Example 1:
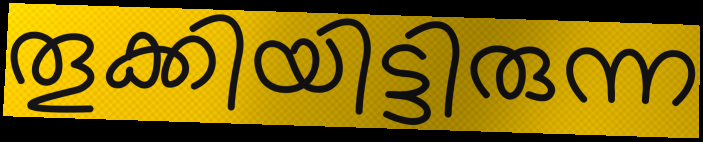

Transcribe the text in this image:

തൂക്കിയിട്ടിരുന്ന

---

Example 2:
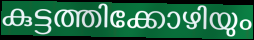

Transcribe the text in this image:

കുട്ടത്തിക്കോഴിയും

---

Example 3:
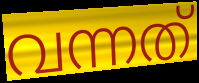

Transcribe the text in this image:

വന്നത്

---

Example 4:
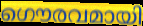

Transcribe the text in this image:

ഗൌരവമായി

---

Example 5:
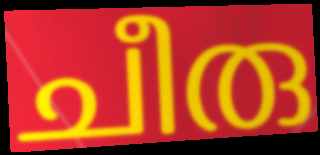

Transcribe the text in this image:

ചീരു